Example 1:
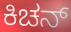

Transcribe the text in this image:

ಕಿಚನ್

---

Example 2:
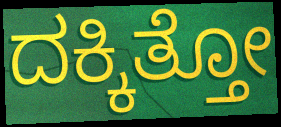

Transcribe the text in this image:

ದಕ್ಕಿತ್ತೋ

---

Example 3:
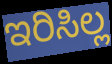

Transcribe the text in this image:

ಇರಿಸಿಲ್ಲ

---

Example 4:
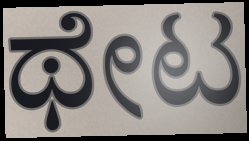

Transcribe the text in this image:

ಥೇಟ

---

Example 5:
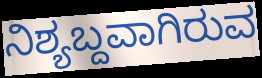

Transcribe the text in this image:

ನಿಶ್ಯಬ್ದವಾಗಿರುವ